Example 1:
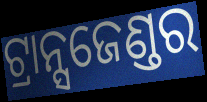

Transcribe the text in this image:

ଟ୍ରାନ୍ସଜେଣ୍ଡର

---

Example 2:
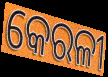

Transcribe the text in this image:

କେରଳୀ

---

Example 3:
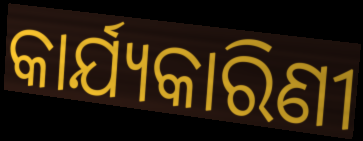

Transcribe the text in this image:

କାର୍ଯ୍ୟକାରିଣୀ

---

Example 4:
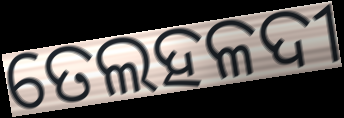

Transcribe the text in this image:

ତେଲହଳଦୀ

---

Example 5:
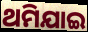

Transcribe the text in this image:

ଥମିଯାଇ